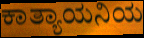
ಕಾತ್ಯಾಯನಿಯ